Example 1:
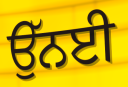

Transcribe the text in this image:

ਉੱਨਈ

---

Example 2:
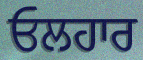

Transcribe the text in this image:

ਓਲਹਾਰ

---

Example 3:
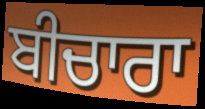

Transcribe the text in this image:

ਬੀਚਾਰਾ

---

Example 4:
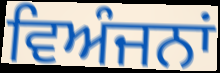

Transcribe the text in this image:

ਵਿਅੰਜਨਾਂ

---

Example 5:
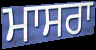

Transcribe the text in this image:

ਮਾਸਰਾ